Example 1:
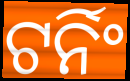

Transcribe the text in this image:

ଟର୍ନିଂ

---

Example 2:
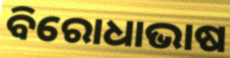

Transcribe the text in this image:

ବିରୋଧାଭାଷ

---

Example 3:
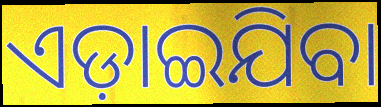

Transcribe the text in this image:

ଏଡ଼ାଇଯିବା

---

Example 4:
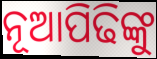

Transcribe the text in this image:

ନୂଆପିଢିଙ୍କୁ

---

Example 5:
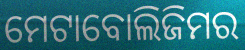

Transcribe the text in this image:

ମେଟାବୋଲିଜିମର